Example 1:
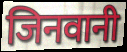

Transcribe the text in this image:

जिनवानी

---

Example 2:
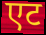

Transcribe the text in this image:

एट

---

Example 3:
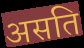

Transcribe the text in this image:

असति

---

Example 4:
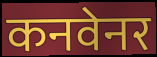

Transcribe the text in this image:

कनवेनर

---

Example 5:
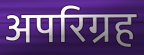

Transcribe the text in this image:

अपरिग्रह